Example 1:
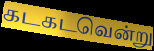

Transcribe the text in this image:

கடகடவென்று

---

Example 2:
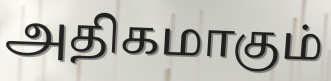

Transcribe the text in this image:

அதிகமாகும்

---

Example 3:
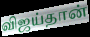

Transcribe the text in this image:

விஜய்தான்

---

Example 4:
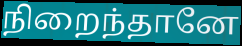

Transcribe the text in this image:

நிறைந்தானே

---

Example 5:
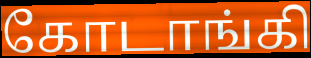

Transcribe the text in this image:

கோடாங்கி